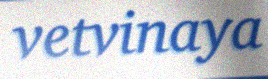
vetvinaya